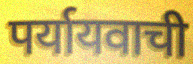
पर्यायवाची